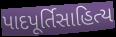
પાદપૂર્તિસાહિત્ય